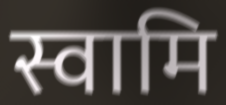
स्वामि